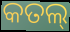
କତଲ୍